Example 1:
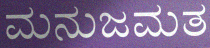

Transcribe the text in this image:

ಮನುಜಮತ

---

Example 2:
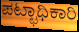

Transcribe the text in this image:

ಪಟ್ಟಾಧಿಕಾರಿ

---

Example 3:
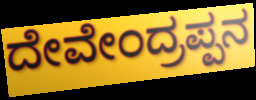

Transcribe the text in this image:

ದೇವೇಂದ್ರಪ್ಪನ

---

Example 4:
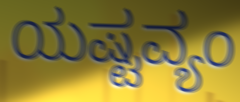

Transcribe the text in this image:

ಯಷ್ಟವ್ಯಂ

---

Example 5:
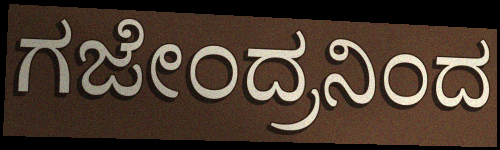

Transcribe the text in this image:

ಗಜೇಂದ್ರನಿಂದ